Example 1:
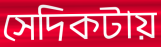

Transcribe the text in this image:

সেদিকটায়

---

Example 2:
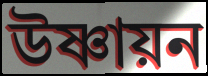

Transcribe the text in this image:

উষ্ণায়ন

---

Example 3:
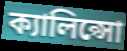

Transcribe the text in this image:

ক্যালিপ্সো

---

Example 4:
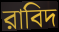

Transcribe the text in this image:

রাবিদ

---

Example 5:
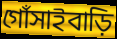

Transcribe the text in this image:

গোঁসাইবাড়ি